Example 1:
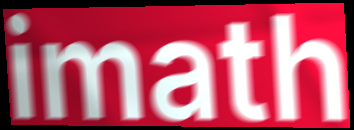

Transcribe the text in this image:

imath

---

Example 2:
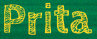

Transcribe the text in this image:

Prita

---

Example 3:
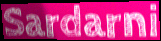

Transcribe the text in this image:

Sardarni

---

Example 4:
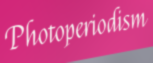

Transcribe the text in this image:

Photoperiodism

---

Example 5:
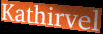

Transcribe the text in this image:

Kathirvel